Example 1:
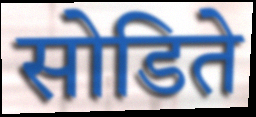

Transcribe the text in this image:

सोडिते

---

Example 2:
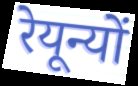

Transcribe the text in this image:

रेयून्यों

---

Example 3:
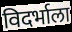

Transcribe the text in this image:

विदर्भाला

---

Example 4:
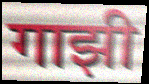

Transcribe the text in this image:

गाझी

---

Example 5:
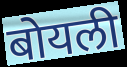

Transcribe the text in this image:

बोयली